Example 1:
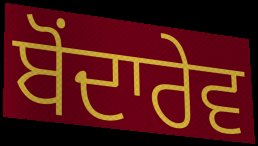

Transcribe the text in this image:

ਬੋਂਦਾਰੇਵ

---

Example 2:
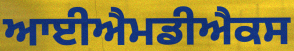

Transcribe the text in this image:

ਆਈਐਮਡੀਐਕਸ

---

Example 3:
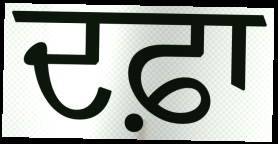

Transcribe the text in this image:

ਦਫ਼ਾ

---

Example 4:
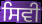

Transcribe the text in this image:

ਸਿਵੀ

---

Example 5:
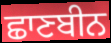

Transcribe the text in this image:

ਛਾਣਬੀਨ